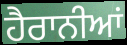
ਹੈਰਾਨੀਆਂ